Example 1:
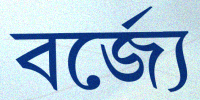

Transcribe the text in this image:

বর্জ্যে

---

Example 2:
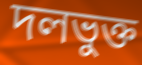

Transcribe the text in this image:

দলভুক্ত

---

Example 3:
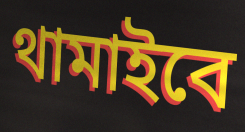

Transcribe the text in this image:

থামাইবে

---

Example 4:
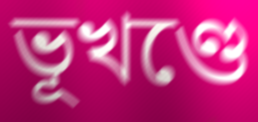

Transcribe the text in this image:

ভূখণ্ডে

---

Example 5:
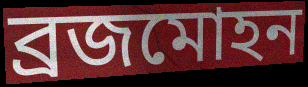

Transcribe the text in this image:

ব্রজমোহন